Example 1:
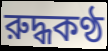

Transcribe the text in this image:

রুদ্ধকণ্ঠ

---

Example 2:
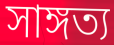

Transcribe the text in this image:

সাঙ্গত্য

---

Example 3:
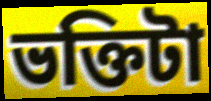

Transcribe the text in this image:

ভক্তিটা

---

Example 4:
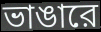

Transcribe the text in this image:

ভাঙারে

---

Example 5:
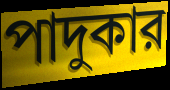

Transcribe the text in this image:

পাদুকার